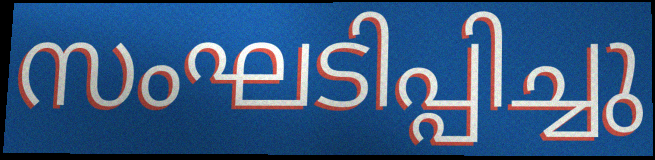
സംഘടിപ്പിച്ചു